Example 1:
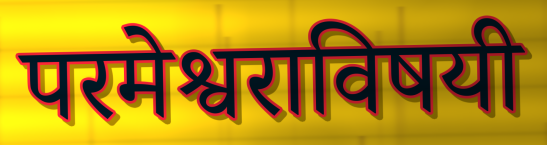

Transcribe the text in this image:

परमेश्वराविषयी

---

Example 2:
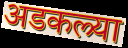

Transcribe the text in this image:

अडकल्या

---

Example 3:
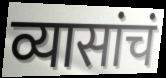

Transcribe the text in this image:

व्यासांचं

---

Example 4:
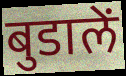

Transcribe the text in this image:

बुडालें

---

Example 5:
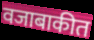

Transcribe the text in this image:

वजाबाकीत